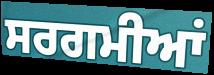
ਸਰਗਮੀਆਂ